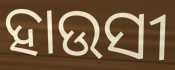
ହାଉସୀ